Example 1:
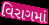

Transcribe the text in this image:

વિરાગમાં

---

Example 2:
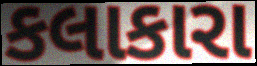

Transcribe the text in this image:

કલાકારા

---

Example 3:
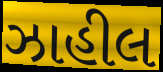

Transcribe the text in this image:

ઝાહીલ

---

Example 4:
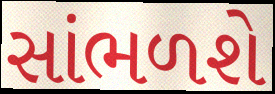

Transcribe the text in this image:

સાંભળશે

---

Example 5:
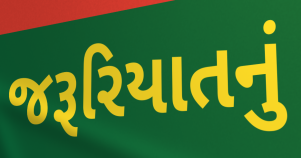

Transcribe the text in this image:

જરૂરિયાતનું